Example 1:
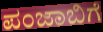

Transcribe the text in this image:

ಪಂಜಾಬಿಗೆ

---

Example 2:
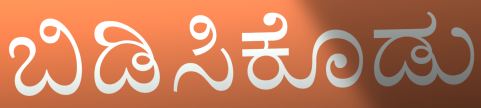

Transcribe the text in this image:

ಬಿಡಿಸಿಕೊಡು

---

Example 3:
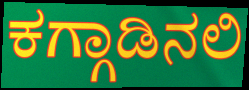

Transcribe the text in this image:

ಕಗ್ಗಾಡಿನಲಿ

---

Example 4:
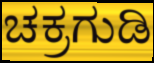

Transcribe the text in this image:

ಚಕ್ರಗುಡಿ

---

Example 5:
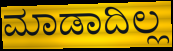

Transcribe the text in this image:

ಮಾಡಾದಿಲ್ಲ